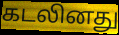
கடலினது